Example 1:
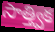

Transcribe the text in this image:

సాత్త్విక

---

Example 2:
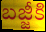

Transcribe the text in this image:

బజ్జీకి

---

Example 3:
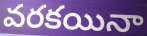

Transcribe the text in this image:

వరకయినా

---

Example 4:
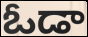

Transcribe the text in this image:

ఓడా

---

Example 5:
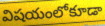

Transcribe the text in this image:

విషయంలోకూడా